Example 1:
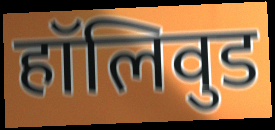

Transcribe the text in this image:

हॉलिवुड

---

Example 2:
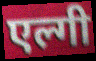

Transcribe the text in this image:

एल्गी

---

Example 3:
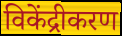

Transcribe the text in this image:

विकेंद्रीकरण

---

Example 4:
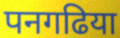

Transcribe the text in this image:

पनगढिया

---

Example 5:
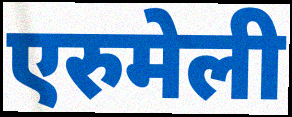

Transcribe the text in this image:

एरुमेली